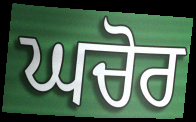
ਘਚੋਰ